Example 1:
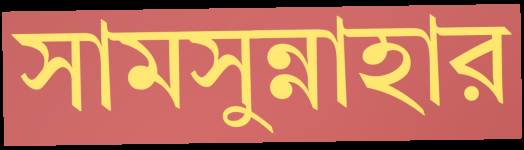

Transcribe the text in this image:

সামসুন্নাহার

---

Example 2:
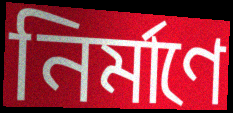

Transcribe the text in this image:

নির্মাণে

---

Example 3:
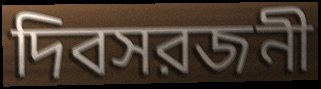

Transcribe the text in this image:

দিবসরজনী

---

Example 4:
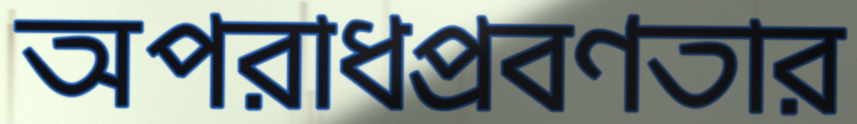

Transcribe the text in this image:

অপরাধপ্রবণতার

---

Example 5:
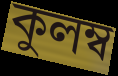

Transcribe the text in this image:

কুলম্ব